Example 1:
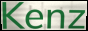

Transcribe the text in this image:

Kenz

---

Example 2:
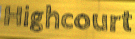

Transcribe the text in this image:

Highcourt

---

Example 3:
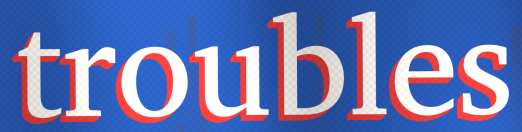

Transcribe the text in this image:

troubles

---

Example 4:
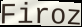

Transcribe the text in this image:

Firoz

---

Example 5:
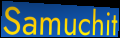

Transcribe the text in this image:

Samuchit